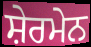
ਸ਼ੇਰਮੇਨ